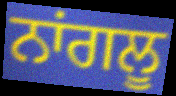
ਨਾਂਗਲੂ